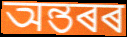
অন্তৰৰ